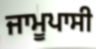
ਜਾਮੂਪਾਸੀ